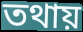
তথায়